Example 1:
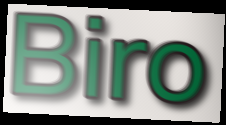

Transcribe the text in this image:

Biro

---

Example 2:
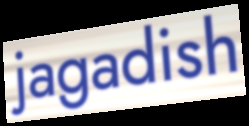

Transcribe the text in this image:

jagadish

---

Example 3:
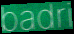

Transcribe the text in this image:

badri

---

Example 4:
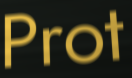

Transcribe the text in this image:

Prot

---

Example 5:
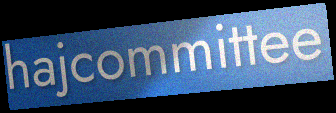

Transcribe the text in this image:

hajcommittee